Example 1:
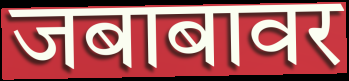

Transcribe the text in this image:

जबाबावर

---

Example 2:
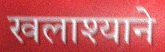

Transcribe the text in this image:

खलाश्याने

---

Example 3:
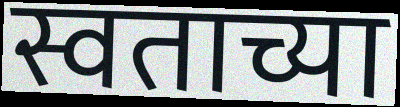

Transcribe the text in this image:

स्वताच्या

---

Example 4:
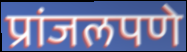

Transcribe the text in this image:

प्रांजलपणे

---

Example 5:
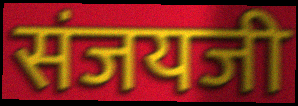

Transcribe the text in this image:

संजयजी